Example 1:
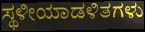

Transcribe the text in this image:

ಸ್ಥಳೀಯಾಡಳಿತಗಳು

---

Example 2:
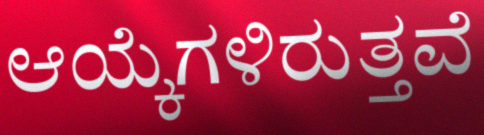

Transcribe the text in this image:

ಆಯ್ಕೆಗಳಿರುತ್ತವೆ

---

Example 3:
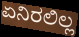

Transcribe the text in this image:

ಏನಿರಲಿಲ್ಲ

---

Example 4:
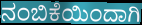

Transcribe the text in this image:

ನಂಬಿಕೆಯಿಂದಾಗಿ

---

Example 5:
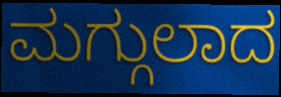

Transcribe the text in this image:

ಮಗ್ಗುಲಾದ